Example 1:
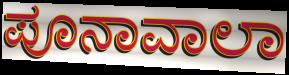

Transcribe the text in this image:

ಪೂನಾವಾಲಾ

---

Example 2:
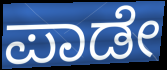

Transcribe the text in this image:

ಪಾಡೇ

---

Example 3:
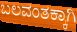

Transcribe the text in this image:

ಬಲವಂತಕ್ಕಾಗಿ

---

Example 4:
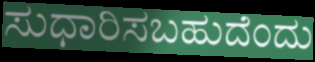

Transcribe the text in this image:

ಸುಧಾರಿಸಬಹುದೆಂದು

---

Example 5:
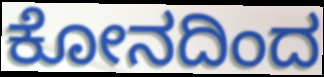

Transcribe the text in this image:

ಕೋನದಿಂದ